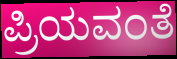
ಪ್ರಿಯವಂತೆ